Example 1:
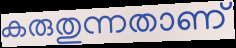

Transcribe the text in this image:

കരുതുന്നതാണ്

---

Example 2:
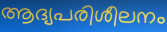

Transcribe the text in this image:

ആദ്യപരിശീലനം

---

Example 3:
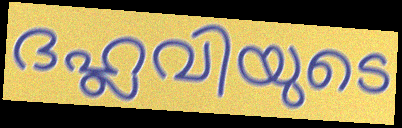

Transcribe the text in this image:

ദഹ്ലവിയുടെ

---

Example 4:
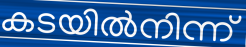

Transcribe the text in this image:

കടയിൽനിന്ന്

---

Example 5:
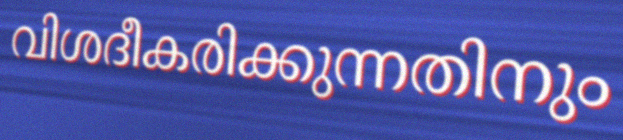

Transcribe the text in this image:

വിശദീകരിക്കുന്നതിനും